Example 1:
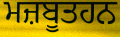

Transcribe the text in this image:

ਮਜ਼ਬੂਤਹਨ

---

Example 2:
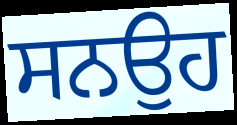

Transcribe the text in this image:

ਸਨਉਹ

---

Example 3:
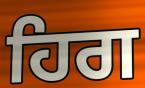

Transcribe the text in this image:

ਹਿਗ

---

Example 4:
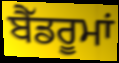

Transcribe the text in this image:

ਬੈੱਡਰੂਮਾਂ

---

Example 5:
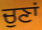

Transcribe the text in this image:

ਚੁਣਾਂ